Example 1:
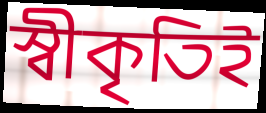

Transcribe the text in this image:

স্বীকৃতিই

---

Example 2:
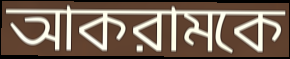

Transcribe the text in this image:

আকরামকে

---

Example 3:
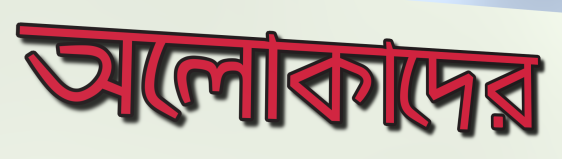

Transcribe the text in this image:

অলোকাদের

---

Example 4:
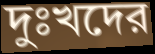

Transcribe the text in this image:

দুঃখদের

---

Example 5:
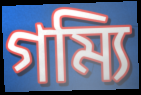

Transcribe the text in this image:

গম্যি